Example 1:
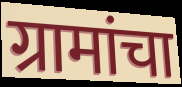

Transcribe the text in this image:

ग्रामांचा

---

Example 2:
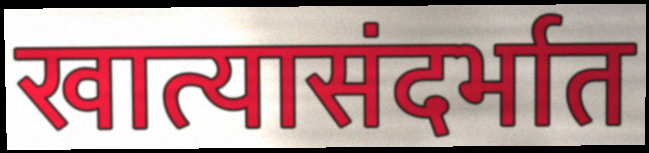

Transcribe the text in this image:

खात्यासंदर्भात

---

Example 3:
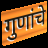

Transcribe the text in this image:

गुणांचे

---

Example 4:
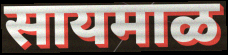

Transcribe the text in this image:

सायमाळ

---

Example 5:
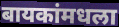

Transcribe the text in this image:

बायकांमधला